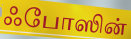
ஃபோஸின்